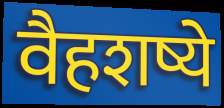
वैहशष्ये